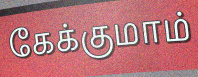
கேக்குமாம்